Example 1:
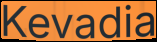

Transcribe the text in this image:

Kevadia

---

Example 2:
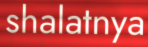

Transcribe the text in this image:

shalatnya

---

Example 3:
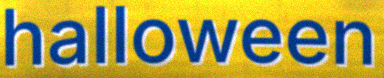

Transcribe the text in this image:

halloween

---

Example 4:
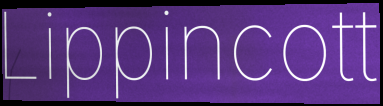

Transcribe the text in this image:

Lippincott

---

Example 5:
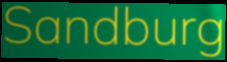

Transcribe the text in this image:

Sandburg